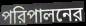
পরিপালনের